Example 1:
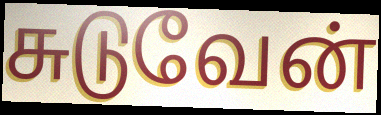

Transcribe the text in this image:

சுடுவேன்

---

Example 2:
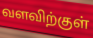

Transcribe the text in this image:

வளவிற்குள்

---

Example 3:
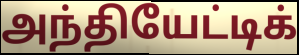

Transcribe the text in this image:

அந்தியேட்டிக்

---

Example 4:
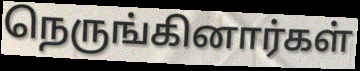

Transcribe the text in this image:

நெருங்கினார்கள்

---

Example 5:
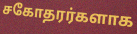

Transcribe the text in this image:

சகோதரர்களாக